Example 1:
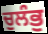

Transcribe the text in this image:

ਚੁਲੰਭੁ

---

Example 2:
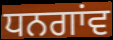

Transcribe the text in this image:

ਧਨਗਾਂਵ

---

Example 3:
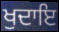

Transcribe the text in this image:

ਖੁਦਾਇ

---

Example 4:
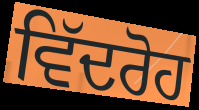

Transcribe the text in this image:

ਵਿੱਦਰੋਹ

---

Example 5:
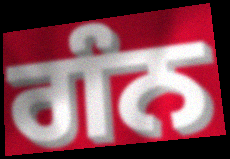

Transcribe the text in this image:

ਗੰਨ